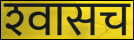
श्‍वासच